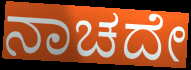
ನಾಚದೇ